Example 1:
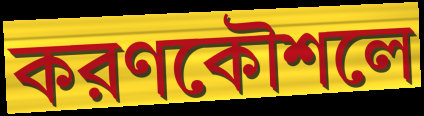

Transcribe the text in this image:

করণকৌশলে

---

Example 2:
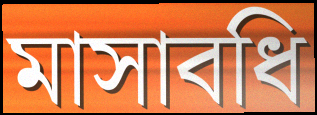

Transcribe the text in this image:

মাসাবধি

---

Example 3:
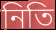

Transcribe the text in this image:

নিতি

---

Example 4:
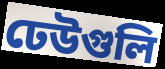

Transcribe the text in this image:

ঢেউগুলি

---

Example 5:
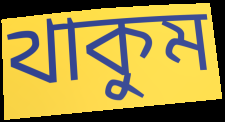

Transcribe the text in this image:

থাকুম